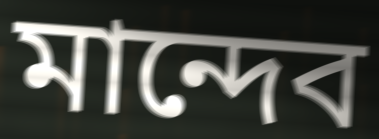
মান্দেব